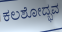
ಕಲಶೋದ್ಭವ